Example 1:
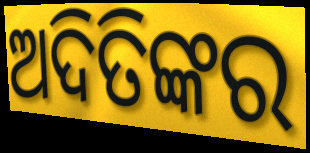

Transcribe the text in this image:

ଅଦିତିଙ୍କର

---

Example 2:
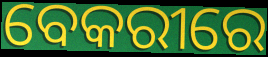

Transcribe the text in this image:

ବେକରୀରେ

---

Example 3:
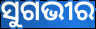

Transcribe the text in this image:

ସୁଗଭୀର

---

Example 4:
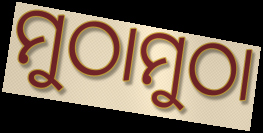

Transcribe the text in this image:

ମୁଠାମୁଠା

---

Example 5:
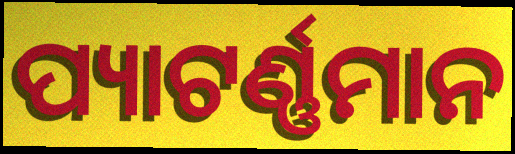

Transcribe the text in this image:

ପ୍ୟାଟର୍ଣ୍ଣମାନ